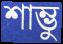
শাম্ভু